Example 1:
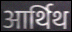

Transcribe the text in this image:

आर्थिथ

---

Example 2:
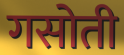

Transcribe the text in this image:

गसोती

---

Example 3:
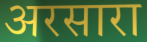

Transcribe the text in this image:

अरसारा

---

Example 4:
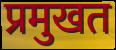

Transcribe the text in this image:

प्रमुखत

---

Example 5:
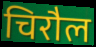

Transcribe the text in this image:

चिरौल